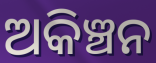
ଅକିଞ୍ଚନ